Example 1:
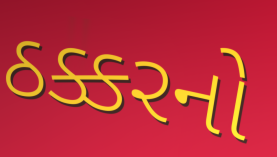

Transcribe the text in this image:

ઠક્કરનો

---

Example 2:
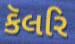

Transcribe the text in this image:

કૅલરિ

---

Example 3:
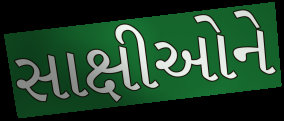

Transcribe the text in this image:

સાક્ષીઓને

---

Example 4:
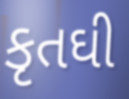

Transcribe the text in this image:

કૃતઘી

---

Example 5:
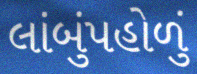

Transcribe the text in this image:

લાંબુંપહોળું